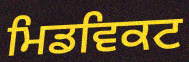
ਮਿਡਵਿਕਟ